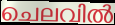
ചെലവിൽ